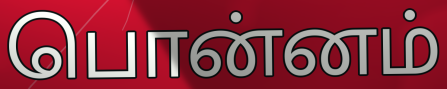
பொன்னம்